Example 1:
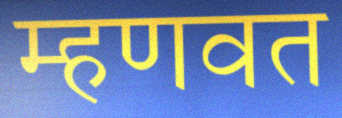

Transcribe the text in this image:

म्हणवत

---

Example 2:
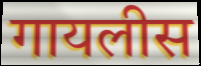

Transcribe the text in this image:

गायलीस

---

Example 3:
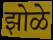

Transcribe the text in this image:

झोळे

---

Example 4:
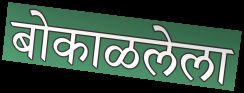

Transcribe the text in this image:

बोकाळलेला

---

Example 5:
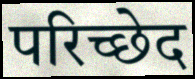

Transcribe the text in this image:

परिच्छेद